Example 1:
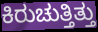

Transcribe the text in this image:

ಕಿರುಚುತ್ತಿತ್ತು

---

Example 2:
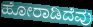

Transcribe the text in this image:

ಹೋರಾಡಿದೆವು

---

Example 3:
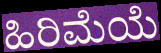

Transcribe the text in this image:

ಹಿರಿಮೆಯೆ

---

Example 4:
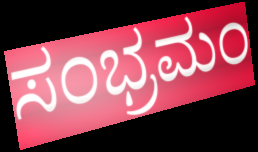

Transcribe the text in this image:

ಸಂಭ್ರಮಂ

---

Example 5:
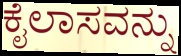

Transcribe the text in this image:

ಕೈಲಾಸವನ್ನು